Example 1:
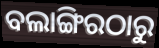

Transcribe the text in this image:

ବଲାଙ୍ଗିରଠାରୁ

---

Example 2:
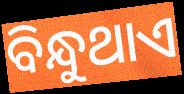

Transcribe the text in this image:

ବିନ୍ଧୁଥାଏ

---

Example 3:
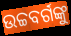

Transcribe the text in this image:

ଉଚ୍ଚବର୍ଗଙ୍କୁ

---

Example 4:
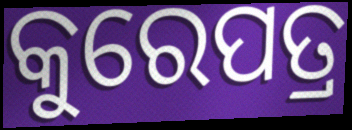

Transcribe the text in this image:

କୁରେପତ୍ର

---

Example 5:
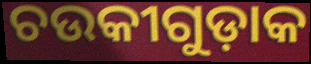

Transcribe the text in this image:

ଚଉକୀଗୁଡ଼ାକ